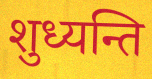
शुध्यन्ति